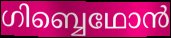
ഗിബ്ബെഥോൻ